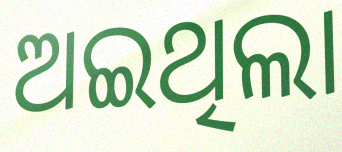
ଅଇଥିଲା